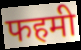
फहमी